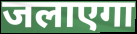
जलाएगा